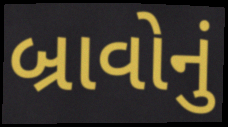
બ્રાવોનું